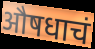
औषधाचं